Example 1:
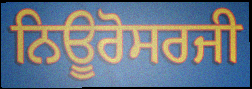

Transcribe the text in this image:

ਨਿਊਰੋਸਰਜੀ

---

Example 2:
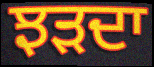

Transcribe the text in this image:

ਝੜਦਾ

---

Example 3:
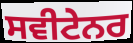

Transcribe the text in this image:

ਸਵੀਟੇਨਰ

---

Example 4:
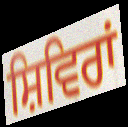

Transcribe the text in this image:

ਸ਼ਿਵਿਰਾਂ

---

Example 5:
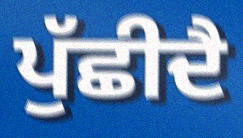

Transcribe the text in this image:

ਪੁੱਛੀਦੈ